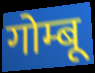
गोम्बू